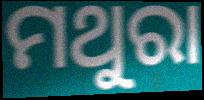
ମଥୁରା